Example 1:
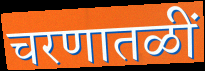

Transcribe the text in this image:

चरणातळीं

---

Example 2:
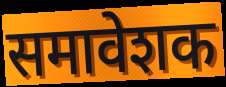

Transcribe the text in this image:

समावेशक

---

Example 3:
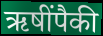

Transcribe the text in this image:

ऋषींपैकी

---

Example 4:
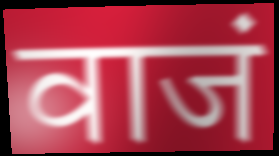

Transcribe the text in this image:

वाजं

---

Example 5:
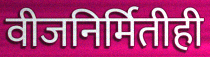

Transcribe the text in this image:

वीजनिर्मितीही